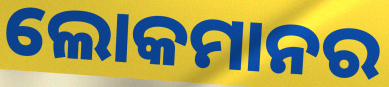
ଲୋକମାନର